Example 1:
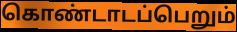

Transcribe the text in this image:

கொண்டாடப்பெறும்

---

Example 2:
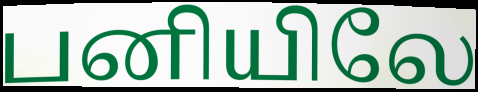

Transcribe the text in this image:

பனியிலே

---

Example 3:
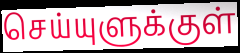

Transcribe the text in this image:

செய்யுளுக்குள்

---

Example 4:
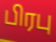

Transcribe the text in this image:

பிரபு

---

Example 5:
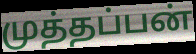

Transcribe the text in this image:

முத்தப்பன்